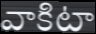
వాకిటా